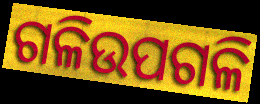
ଗଳିଉପଗଳି